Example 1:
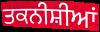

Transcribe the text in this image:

ਤਕਨੀਸ਼ੀਆਂ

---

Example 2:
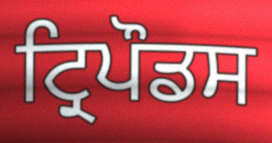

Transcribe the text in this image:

ਟ੍ਰਿਪੌਡਸ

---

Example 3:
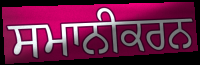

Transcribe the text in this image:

ਸਮਾਨੀਕਰਨ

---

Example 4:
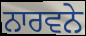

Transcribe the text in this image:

ਨਾਰਵਨੇ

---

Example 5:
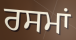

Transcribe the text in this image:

ਰਸਮਾਂ